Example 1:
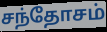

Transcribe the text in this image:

சந்தோசம்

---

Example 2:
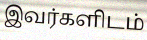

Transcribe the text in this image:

இவர்களிடம்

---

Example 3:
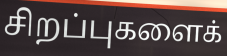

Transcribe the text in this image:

சிறப்புகளைக்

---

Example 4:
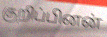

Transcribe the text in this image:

குறிப்பினன்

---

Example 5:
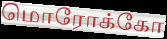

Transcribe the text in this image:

மொரோக்கோ